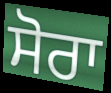
ਸੋਰਾ